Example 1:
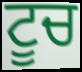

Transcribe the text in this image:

ਟੂਚ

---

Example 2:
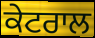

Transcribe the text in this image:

ਕੇਟਰਾਲ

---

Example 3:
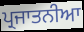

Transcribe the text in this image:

ਪ੍ਰਜਾਤਨੀਆ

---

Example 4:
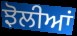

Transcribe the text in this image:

ਝੋਲੀਆਂ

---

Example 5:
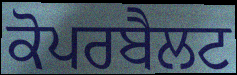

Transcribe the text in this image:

ਕੋਪਰਬੈਲਟ